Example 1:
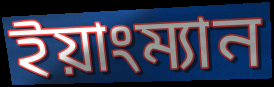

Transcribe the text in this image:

ইয়াংম্যান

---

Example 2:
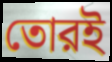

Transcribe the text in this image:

তোরই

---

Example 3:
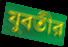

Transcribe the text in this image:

যুবতীর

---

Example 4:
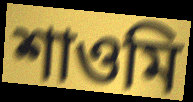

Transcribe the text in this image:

শাওমি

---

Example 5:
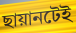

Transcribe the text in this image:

ছায়ানটেই